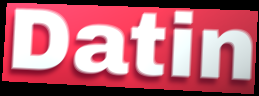
Datin